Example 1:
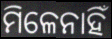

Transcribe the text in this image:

ମିଳେନାହିଁ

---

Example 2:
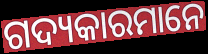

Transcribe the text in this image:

ଗଦ୍ୟକାରମାନେ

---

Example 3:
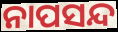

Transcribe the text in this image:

ନାପସନ୍ଦ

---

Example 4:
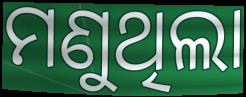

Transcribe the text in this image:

ମଣୁଥିଲା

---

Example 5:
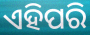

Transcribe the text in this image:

ଏହିପରି